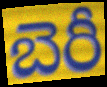
బెరీ